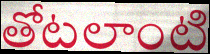
తోటలాంటి